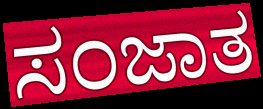
ಸಂಜಾತ